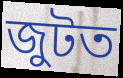
জুটত